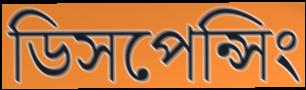
ডিসপেন্সিং